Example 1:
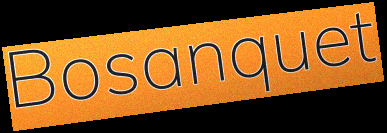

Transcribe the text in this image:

Bosanquet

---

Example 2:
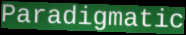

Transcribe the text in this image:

Paradigmatic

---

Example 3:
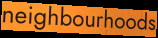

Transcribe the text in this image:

neighbourhoods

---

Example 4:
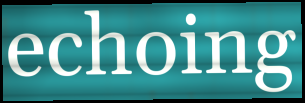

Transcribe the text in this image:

echoing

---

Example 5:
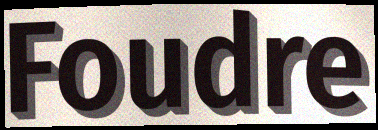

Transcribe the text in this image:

Foudre